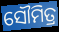
ସୌମିତ୍ର